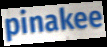
pinakee